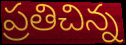
ప్రతిచిన్న